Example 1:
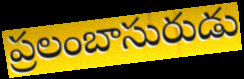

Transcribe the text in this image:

ప్రలంబాసురుడు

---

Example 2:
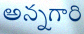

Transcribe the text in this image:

అన్నగారి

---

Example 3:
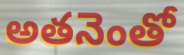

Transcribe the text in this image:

అతనెంతో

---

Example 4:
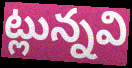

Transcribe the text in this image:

ట్లున్నవి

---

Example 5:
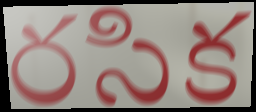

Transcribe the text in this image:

రసిక